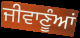
ਜੀਵਾਣੂੰਆਂ